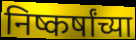
निष्कर्षांच्या